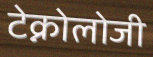
टेक्नोलोजी